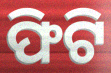
ଫିଟି